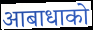
आबाधाको